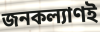
জনকল্যাণই